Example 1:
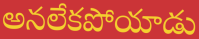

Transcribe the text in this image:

అనలేకపోయాడు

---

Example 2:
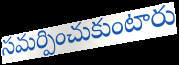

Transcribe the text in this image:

సమర్పించుకుంటారు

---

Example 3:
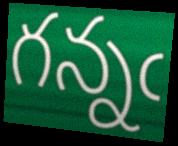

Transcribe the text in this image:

గన్నఁ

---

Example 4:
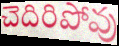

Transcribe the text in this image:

చెదిరిపోవు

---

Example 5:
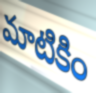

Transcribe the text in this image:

మాటికిం